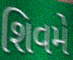
શિવમે